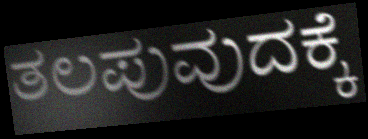
ತಲಪುವುದಕ್ಕೆ